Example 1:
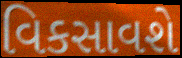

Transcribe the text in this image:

વિકસાવશે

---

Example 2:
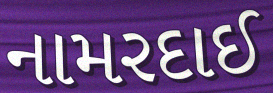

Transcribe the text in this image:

નામરદાઈ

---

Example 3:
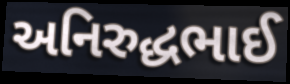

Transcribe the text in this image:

અનિરુદ્ધભાઈ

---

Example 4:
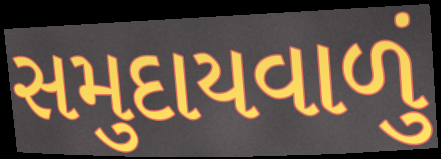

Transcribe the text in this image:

સમુદાયવાળું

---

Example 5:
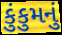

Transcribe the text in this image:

કુંકુમનું